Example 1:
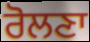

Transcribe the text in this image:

ਰੋਲਣਾ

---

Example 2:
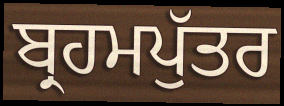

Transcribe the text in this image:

ਬ੍ਰਹਮਪੁੱਤਰ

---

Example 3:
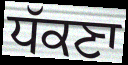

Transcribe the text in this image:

ਧੱਕਣਾ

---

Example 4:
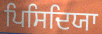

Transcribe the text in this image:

ਪਿਸਿਦਿਯਾ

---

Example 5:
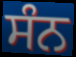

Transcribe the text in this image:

ਸੰਨ